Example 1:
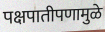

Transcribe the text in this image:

पक्षपातीपणामुळे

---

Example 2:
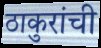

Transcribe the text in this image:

ठाकुरांची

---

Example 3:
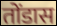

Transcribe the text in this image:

तोंडास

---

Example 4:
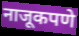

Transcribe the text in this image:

नाजूकपणे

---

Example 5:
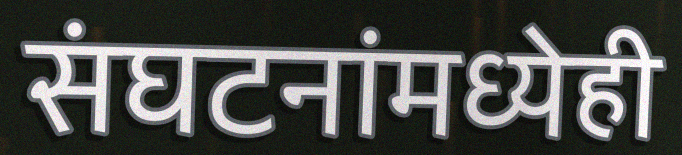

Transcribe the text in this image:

संघटनांमध्येही